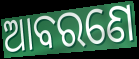
ଆବରଣେ